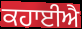
ਕਹਾਈਐ